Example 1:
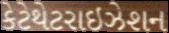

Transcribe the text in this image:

કેટેથેટરાઇઝેશન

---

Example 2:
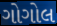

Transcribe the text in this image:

ગોગોલ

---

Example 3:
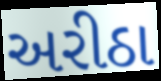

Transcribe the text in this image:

અરીઠા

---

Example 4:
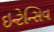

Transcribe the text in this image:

ઇન્ટેન્સિવ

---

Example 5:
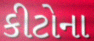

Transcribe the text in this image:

કીટોના